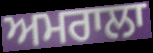
ਅਮਰਾਲਾ